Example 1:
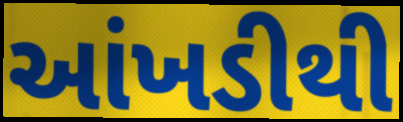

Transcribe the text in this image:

આંખડીથી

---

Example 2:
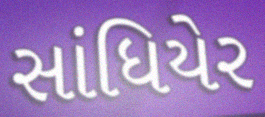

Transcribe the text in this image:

સાંધિયેર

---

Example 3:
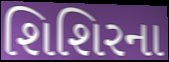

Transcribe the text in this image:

શિશિરના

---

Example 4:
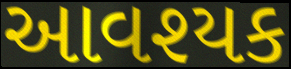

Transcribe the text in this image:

આવશ્યક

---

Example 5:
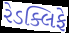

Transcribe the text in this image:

રેડક્લિફે